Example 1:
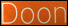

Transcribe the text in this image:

Doon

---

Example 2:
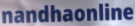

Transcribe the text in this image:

nandhaonline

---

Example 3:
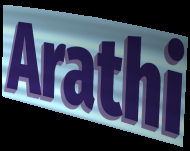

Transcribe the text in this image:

Arathi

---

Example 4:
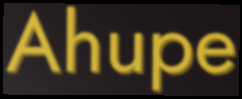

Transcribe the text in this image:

Ahupe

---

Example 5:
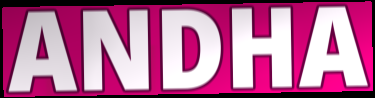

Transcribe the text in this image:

ANDHA